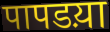
पापडय़ा